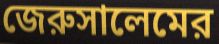
জেরুসালেমের